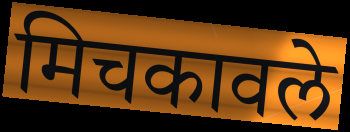
मिचकावले